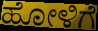
ಹೋಳಿಗೆ